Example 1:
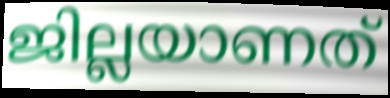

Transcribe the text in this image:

ജില്ലയാണത്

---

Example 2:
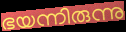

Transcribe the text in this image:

ഭയന്നിരുന്നു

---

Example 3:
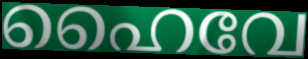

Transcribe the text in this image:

ഹൈവേ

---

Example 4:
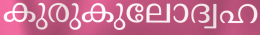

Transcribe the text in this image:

കുരുകുലോദ്വഹ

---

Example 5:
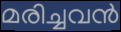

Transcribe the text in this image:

മരിച്ചവൻ